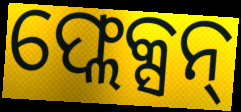
ଫ୍ଲେକ୍ସନ୍